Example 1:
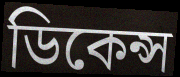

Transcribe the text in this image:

ডিকেন্স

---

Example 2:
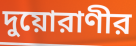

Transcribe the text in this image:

দুয়োরাণীর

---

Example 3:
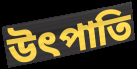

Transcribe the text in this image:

উৎপাতি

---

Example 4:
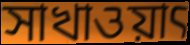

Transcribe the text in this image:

সাখাওয়াৎ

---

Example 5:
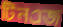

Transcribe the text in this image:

টিনএজ